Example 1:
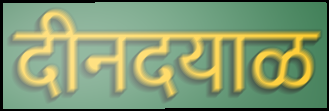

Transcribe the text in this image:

दीनदयाळ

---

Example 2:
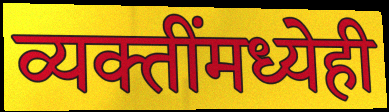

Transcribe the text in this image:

व्यक्तींमध्येही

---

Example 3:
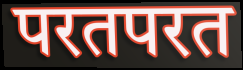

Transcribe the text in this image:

परतपरत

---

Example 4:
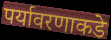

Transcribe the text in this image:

पर्यावरणाकडे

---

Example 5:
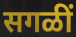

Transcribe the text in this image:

सगळीं